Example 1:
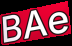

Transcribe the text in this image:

BAe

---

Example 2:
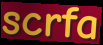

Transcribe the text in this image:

scrfa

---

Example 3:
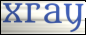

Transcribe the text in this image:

xray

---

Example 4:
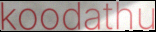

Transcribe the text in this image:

koodathu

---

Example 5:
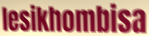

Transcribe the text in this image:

lesikhombisa